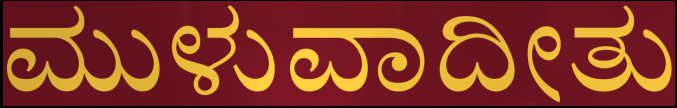
ಮುಳುವಾದೀತು